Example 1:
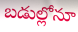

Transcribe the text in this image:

బడుల్లోనూ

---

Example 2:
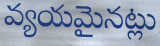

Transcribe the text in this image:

వ్యయమైనట్లు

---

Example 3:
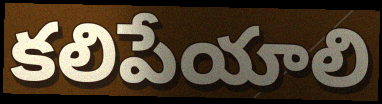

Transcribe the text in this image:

కలిపేయాలి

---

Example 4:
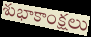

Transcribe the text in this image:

శుభాకాంక్షలు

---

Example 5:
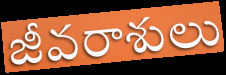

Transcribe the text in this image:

జీవరాశులు